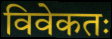
विवेकतः